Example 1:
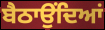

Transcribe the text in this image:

ਬੈਠਾਉਂਦਿਆਂ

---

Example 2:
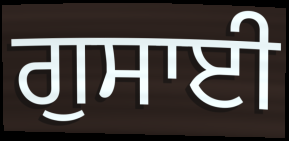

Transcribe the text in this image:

ਗੁਸਾਈ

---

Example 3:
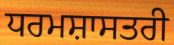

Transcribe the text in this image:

ਧਰਮਸ਼ਾਸਤਰੀ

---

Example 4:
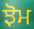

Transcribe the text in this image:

ਝੋਮ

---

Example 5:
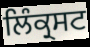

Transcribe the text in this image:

ਲਿੰਕ੍ਰਸਟ